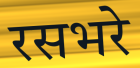
रसभरे